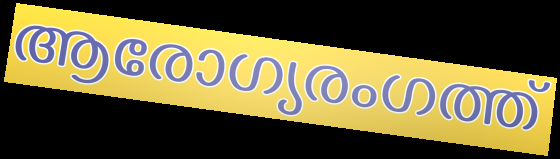
ആരോഗ്യരംഗത്ത്